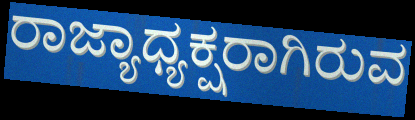
ರಾಜ್ಯಾಧ್ಯಕ್ಷರಾಗಿರುವ